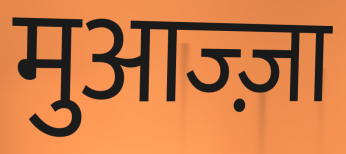
मुआज्ज़ा